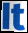
It